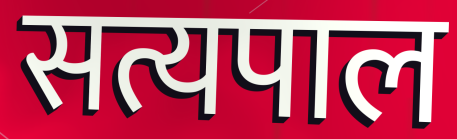
सत्यपाल